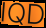
IQD